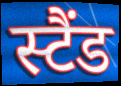
स्टैंड